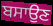
ਬਸਾਉਣ